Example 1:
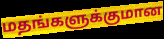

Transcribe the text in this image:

மதங்களுக்குமான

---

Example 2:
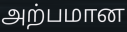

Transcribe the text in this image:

அற்பமான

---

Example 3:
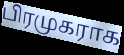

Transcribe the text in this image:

பிரமுகராக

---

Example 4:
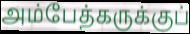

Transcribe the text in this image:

அம்பேத்கருக்குப்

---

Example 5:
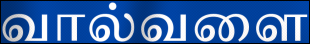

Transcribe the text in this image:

வால்வளை